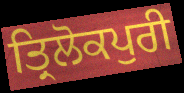
ਤ੍ਰਿਲੋਕਪੁਰੀ